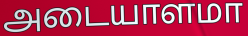
அடையாளமா